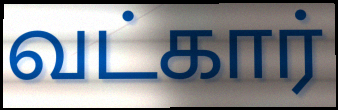
வட்கார்